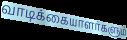
வாடிக்கையாளர்களும்